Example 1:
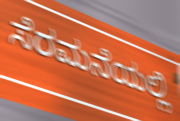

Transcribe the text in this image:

ಸೆರಮನೆಯಲ್ಲಿ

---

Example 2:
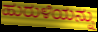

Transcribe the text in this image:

ಹುರುಳಿಯನ್ನು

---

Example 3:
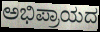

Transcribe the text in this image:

ಅಭಿಪ್ರಾಯದ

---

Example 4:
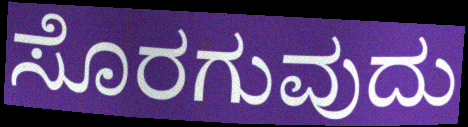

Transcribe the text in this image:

ಸೊರಗುವುದು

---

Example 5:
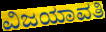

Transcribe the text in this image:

ವಿಜಯಾವತಿ